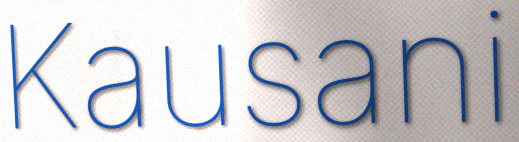
Kausani